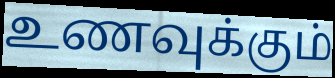
உணவுக்கும்